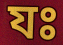
যঃ